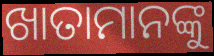
ଖାତାମାନଙ୍କୁ